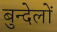
बुन्देलों